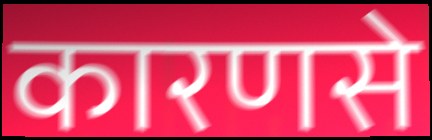
कारणसे